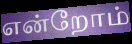
என்றோம்